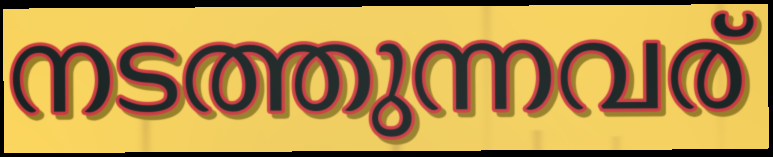
നടത്തുന്നവര്